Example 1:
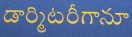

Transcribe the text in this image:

డార్మిటరీగానూ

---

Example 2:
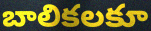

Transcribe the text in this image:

బాలికలకూ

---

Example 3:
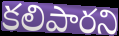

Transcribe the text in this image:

కలిపారని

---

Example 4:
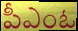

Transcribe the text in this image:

పీఎంఓ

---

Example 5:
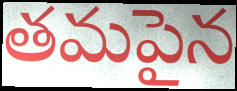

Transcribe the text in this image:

తమపైన